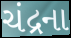
ચંદ્રના